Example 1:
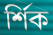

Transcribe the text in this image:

র্শিক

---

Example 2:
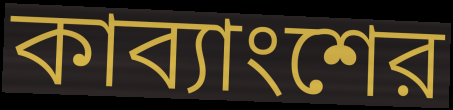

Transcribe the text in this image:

কাব্যাংশের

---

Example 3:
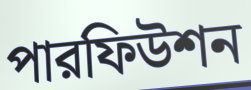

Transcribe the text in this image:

পারফিউশন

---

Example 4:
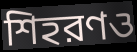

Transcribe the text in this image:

শিহরণও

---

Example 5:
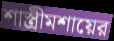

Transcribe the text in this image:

শাস্ত্রীমশায়ের